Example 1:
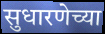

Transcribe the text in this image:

सुधारणेच्या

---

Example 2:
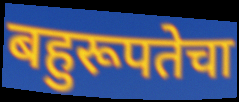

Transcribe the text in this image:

बहुरूपतेचा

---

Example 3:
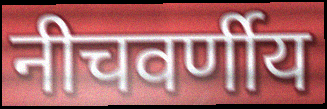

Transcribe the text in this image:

नीचवर्णीय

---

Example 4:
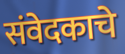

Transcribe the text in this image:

संवेदकाचे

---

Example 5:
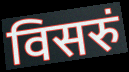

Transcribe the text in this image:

विसरुं